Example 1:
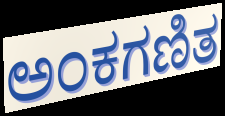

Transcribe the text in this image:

ಅಂಕಗಣಿತ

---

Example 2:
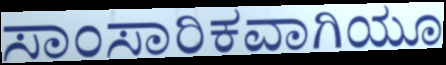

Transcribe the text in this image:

ಸಾಂಸಾರಿಕವಾಗಿಯೂ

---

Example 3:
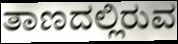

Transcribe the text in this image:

ತಾಣದಲ್ಲಿರುವ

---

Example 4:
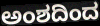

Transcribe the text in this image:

ಅಂಶದಿಂದ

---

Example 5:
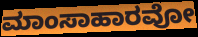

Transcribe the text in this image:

ಮಾಂಸಾಹಾರವೋ